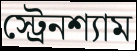
স্ট্রেনশ্যাম